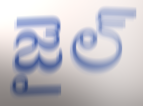
జైల్